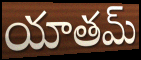
యాతమ్